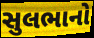
સુલભાનો